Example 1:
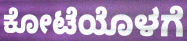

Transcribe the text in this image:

ಕೋಟೆಯೊಳಗೆ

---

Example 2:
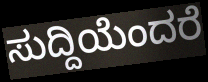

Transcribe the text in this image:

ಸುದ್ದಿಯೆಂದರೆ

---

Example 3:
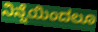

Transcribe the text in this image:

ನಿನ್ನೆಯಿಂದಲೂ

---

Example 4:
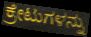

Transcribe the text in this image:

ಕ್ರೇಟುಗಳನ್ನು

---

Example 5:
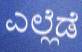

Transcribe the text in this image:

ಎಲ್ಲೆಡೆ